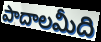
పాదాలమీది